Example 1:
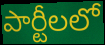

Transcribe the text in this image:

పార్టీలలో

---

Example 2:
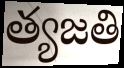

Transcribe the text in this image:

త్యజతి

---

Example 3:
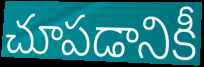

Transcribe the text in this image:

చూపడానికీ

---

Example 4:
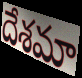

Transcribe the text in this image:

దేశమా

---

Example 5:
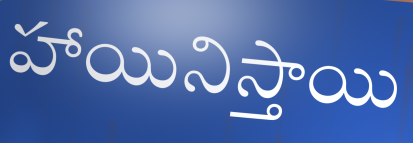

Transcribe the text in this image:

హాయినిస్తాయి